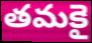
తమకై